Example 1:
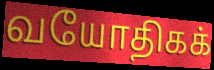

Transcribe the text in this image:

வயோதிகக்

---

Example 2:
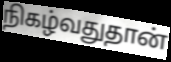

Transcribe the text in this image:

நிகழ்வதுதான்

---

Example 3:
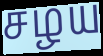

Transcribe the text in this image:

சழய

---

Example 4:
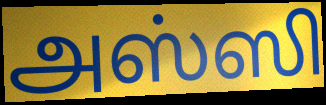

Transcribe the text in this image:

அஸ்ஸி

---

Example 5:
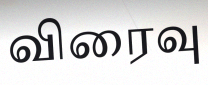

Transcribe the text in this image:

விரைவு